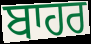
ਬਾਹਰ